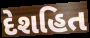
દેશહિત